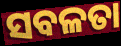
ସବଳତା